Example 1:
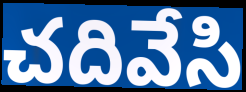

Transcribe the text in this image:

చదివేసి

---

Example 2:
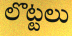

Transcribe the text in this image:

లొట్టలు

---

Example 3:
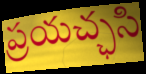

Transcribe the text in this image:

ప్రయచ్ఛసి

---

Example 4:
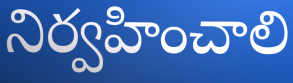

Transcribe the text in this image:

నిర్వహించాలి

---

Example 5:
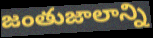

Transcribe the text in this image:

జంతుజాలాన్ని